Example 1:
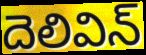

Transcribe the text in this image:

దెలివిన్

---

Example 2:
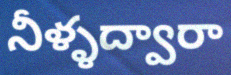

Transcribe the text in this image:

నీళ్ళద్వారా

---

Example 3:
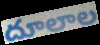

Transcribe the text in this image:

దూలాల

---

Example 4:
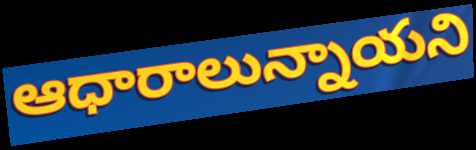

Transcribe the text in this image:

ఆధారాలున్నాయని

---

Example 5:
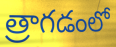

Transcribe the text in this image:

త్రాగడంలో